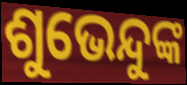
ଶୁଭେନ୍ଦୁଙ୍କ